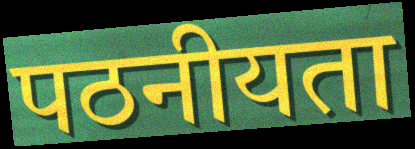
पठनीयता